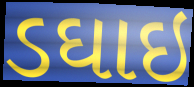
ડઘાઇ